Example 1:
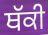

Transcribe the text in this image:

ਥੱਕੀ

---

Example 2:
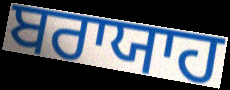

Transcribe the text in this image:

ਬਰਾਯਾਹ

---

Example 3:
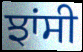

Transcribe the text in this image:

ਝਾਂਸੀ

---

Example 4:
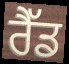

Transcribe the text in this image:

ਰੈੱਡ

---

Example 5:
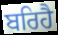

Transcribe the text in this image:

ਬਰਿਹੈ